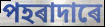
পহৰাদাৰে